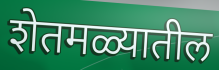
शेतमळ्यातील